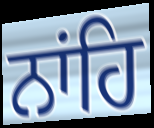
ਨਾਂਹਿ